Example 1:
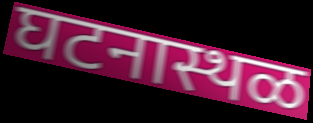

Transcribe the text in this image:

घटनास्थळ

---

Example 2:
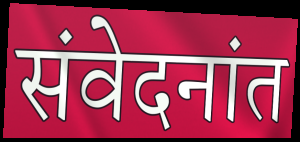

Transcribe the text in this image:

संवेदनांत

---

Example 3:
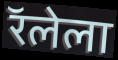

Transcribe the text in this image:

रॅलेला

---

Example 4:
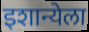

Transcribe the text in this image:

इशान्येला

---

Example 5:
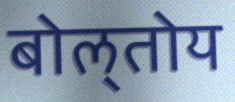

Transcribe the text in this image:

बोल्तोय